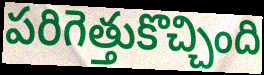
పరిగెత్తుకొచ్చింది